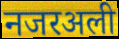
नजरअली